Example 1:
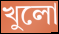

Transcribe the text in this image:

খুলো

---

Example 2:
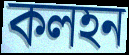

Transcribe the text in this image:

কলহন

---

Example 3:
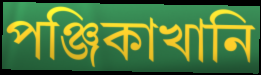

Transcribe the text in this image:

পঞ্জিকাখানি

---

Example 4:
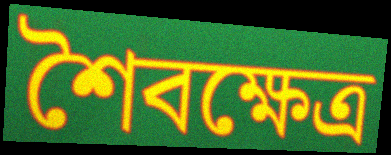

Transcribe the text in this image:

শৈবক্ষেত্র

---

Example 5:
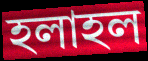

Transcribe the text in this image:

হলাহল